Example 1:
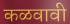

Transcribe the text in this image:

कळवावी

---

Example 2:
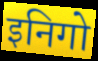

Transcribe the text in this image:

इनिगो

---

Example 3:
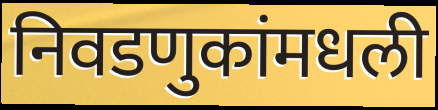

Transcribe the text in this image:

निवडणुकांमधली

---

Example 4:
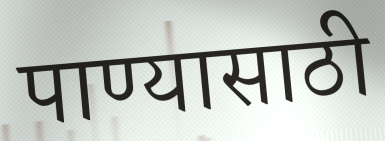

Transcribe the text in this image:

पाण्यासाठी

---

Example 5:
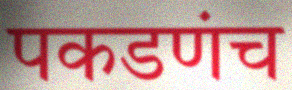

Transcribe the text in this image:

पकडणंच